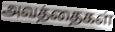
அவத்தைகள்